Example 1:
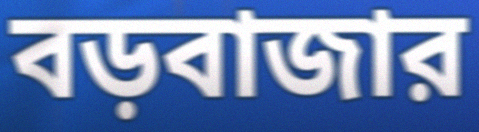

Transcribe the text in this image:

বড়বাজার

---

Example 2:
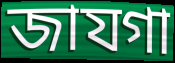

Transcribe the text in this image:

জাযগা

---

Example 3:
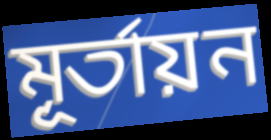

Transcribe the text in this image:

মূর্তায়ন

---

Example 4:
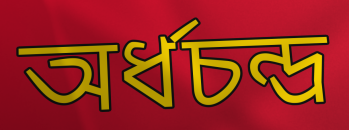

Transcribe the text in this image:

অর্ধচন্দ্র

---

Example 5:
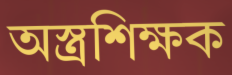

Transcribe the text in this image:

অস্ত্রশিক্ষক